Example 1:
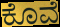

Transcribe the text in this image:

ಕೊವೆ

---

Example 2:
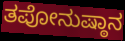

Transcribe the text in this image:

ತಪೋನುಷ್ಠಾನ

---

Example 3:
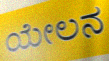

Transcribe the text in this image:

ಯೇಲನ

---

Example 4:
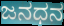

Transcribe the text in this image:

ಜನಧನ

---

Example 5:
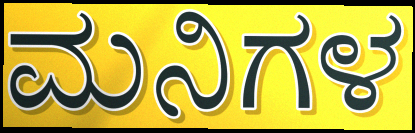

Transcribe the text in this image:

ಮನಿಗಳ